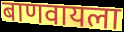
बाणवायला